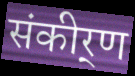
संकीर्ण